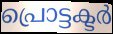
പ്രൊട്ടക്ടർ